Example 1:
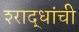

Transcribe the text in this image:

श्राद्धांची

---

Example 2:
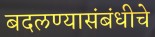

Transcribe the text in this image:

बदलण्यासंबंधीचे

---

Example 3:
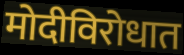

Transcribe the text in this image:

मोदीविरोधात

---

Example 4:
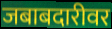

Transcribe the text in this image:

जबाबदारीवर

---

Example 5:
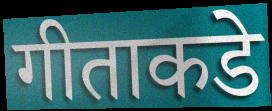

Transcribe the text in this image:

गीताकडे